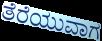
ತೆರೆಯುವಾಗ